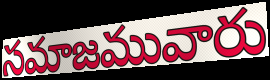
సమాజమువారు